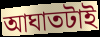
আঘাতটাই